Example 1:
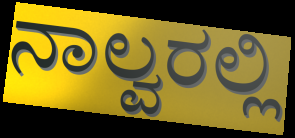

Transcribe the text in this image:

ನಾಲ್ವರಲ್ಲಿ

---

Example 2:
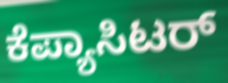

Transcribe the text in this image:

ಕೆಪ್ಯಾಸಿಟರ್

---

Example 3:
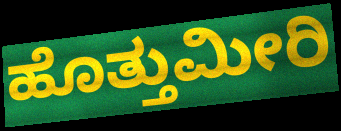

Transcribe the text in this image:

ಹೊತ್ತುಮೀರಿ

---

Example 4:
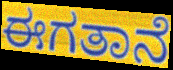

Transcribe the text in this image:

ಈಗತಾನೆ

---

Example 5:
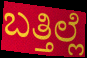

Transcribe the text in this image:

ಬತ್ತಿಲ್ಲೆ